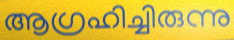
ആഗ്രഹിച്ചിരുന്നു